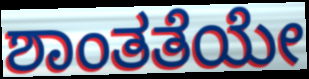
ಶಾಂತತೆಯೇ